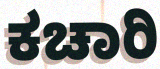
ಕಚಾರಿ